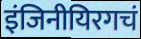
इंजिनीयिरगचं